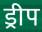
ड्रीप